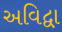
અવિદ્વા